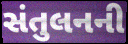
સંતુલનની